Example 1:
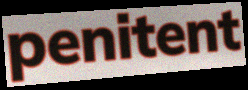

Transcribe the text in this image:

penitent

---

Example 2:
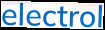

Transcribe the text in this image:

electrol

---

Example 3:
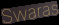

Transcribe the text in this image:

Swaras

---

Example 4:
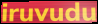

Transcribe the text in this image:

iruvudu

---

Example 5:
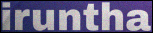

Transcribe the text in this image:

iruntha